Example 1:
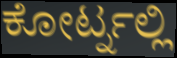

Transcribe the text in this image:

ಕೋರ್ಟ್ನಲ್ಲಿ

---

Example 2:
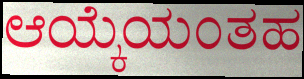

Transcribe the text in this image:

ಆಯ್ಕೆಯಂತಹ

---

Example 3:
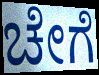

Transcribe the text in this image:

ಚೇಗೆ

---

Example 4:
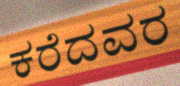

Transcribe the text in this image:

ಕರೆದವರ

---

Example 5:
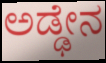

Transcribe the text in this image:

ಅಡ್ಢೇನ